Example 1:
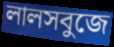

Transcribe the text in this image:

লালসবুজে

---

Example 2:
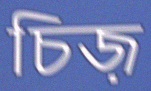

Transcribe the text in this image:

চিজ়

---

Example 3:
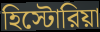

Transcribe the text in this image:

হিস্টোরিয়া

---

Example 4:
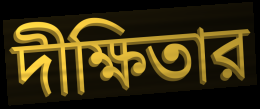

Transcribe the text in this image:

দীক্ষিতার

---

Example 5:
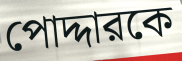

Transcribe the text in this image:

পোদ্দারকে